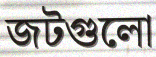
জটগুলো